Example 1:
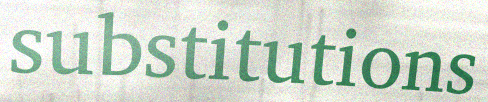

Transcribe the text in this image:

substitutions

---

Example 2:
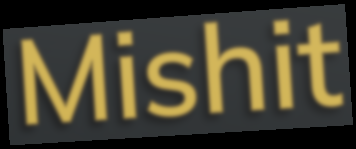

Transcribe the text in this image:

Mishit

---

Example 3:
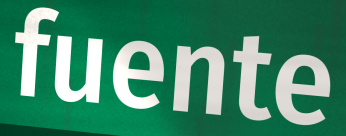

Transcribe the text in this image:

fuente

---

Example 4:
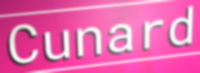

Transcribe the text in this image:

Cunard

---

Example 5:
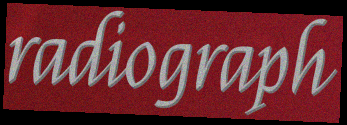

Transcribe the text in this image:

radiograph